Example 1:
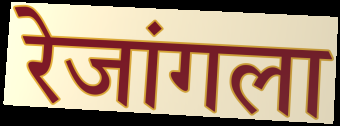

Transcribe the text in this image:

रेजांगला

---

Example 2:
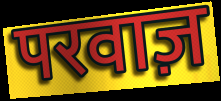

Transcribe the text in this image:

परवाज़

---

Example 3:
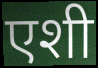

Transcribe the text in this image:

एशी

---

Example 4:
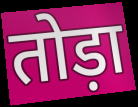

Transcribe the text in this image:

तोड़ा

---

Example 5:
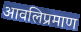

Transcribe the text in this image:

आवलिप्रमाण